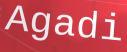
Agadi